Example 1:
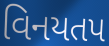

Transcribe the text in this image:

વિનયતપ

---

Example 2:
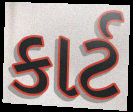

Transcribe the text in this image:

કાર્ટ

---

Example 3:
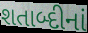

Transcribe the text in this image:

શતાબ્દીનાં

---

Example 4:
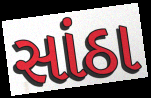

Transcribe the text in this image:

સાંઠા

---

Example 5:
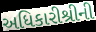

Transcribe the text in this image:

અધિકારીશ્રીની